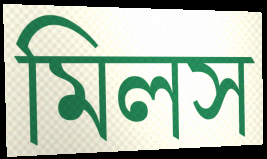
মিলস